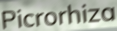
Picrorhiza